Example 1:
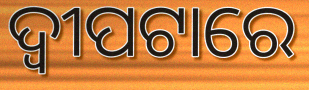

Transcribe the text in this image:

ଦ୍ୱୀପଟାରେ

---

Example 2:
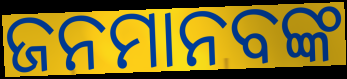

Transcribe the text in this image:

ଜନମାନବଙ୍କ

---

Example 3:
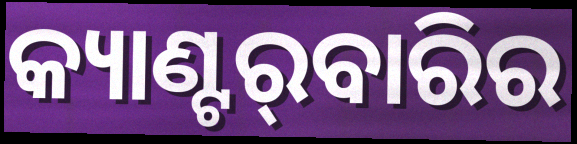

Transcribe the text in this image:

କ୍ୟାଣ୍ଟର୍‌ବାରିର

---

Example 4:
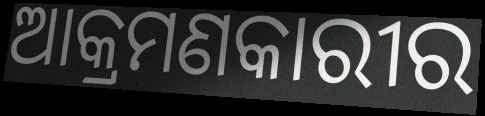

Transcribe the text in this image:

ଆକ୍ରମଣକାରୀର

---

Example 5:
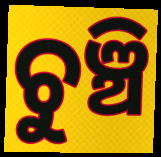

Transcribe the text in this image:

ଚୁଞ୍ଚି